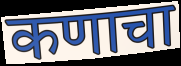
कणाचा